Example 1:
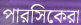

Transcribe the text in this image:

পারসিকেরা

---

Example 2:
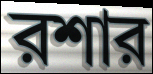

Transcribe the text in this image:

রশার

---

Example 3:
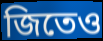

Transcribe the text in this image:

জিতেও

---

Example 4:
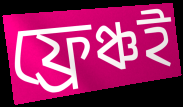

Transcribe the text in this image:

ফ্রেঞ্চই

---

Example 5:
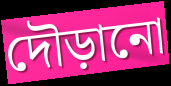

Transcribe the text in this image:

দৌড়ানো